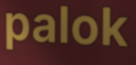
palok